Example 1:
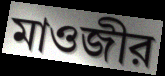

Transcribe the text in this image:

মাওজীর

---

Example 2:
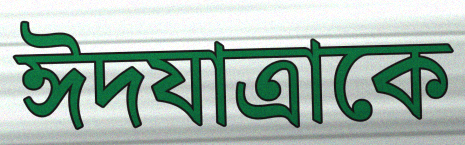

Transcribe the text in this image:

ঈদযাত্রাকে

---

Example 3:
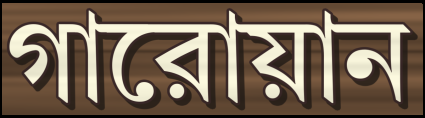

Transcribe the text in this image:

গারোয়ান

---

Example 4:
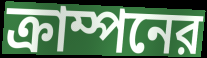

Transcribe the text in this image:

ক্রাম্পনের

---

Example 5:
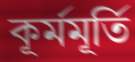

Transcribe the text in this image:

কূর্মমূর্তি